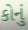
કોનું